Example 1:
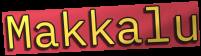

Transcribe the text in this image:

Makkalu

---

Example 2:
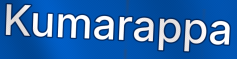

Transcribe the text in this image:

Kumarappa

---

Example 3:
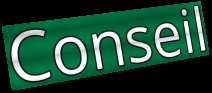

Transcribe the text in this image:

Conseil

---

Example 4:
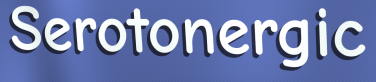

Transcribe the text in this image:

Serotonergic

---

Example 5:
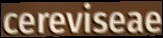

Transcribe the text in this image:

cereviseae